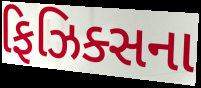
ફિઝિક્સના